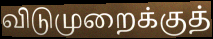
விடுமுறைக்குத்